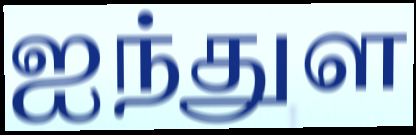
ஐந்துள